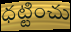
ధట్టించు